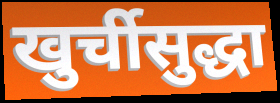
खुर्चीसुद्धा